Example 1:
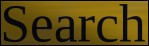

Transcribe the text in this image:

Search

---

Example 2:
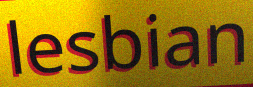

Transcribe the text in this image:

lesbian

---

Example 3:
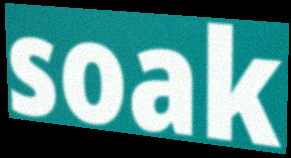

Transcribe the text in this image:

soak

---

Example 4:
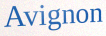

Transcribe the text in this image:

Avignon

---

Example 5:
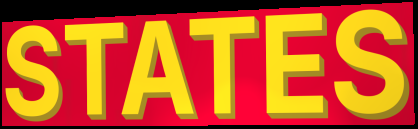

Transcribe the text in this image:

STATES